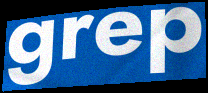
grep